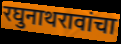
रघुनाथरावांचा